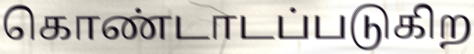
கொண்டாடப்படுகிற